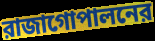
রাজাগোপালনের